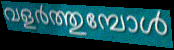
വളർത്തുമ്പോൾ